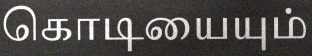
கொடியையும்